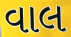
વાલ